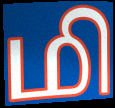
மி